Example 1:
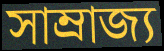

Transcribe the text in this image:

সাম্রাজ্য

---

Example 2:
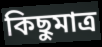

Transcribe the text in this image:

কিছুমাত্র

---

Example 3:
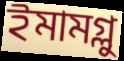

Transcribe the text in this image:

ইমামগ্লু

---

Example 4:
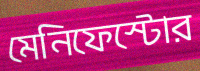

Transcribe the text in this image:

মেনিফেস্টোর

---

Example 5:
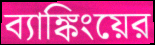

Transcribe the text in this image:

ব্যাঙ্কিংয়ের